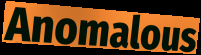
Anomalous